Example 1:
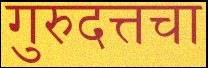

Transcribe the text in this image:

गुरुदत्तचा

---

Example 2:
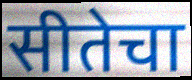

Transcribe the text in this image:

सीतेचा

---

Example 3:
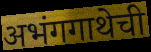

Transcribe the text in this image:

अभंगगाथेची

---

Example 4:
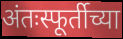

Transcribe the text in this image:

अंतःस्फूर्तीच्या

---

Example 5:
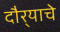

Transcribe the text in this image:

दौर्‍याचे